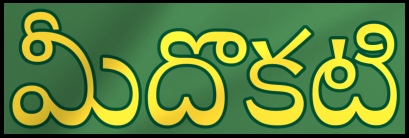
మీదొకటి